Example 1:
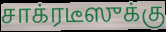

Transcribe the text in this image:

சாக்ரடீஸுக்கு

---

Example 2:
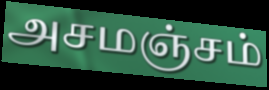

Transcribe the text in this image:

அசமஞ்சம்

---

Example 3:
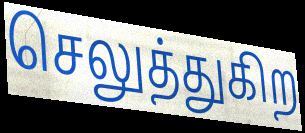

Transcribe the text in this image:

செலுத்துகிற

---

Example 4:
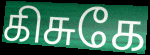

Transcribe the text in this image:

கிசுகே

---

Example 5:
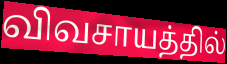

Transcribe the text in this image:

விவசாயத்தில்